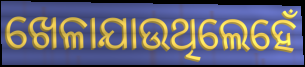
ଖେଳାଯାଉଥିଲେହେଁ